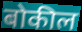
बोकील